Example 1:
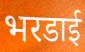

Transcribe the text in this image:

भरडाई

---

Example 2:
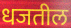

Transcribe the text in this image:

धजतील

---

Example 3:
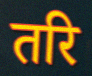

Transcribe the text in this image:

तरि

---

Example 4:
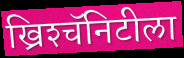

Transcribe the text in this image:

ख्रिश्चॅनिटीला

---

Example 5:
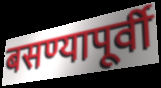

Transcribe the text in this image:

बसण्यापूर्वी